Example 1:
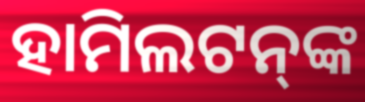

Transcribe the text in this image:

ହାମିଲଟନ୍‍ଙ୍କ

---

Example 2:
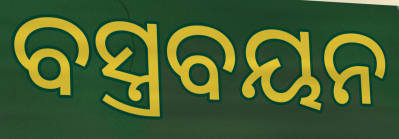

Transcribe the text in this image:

ବସ୍ତ୍ରବୟନ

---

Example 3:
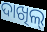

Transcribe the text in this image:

ଦାଖିଲ୍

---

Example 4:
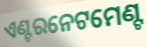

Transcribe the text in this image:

ଏଣ୍ଟରନେଟମେଣ୍ଟ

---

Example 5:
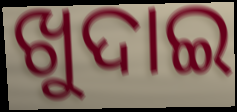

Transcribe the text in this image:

ଖୁଦାଇ